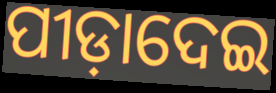
ପୀଡ଼ାଦେଇ